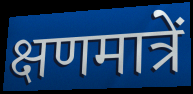
क्षणमात्रें